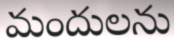
మందులను